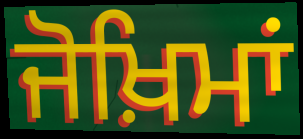
ਜੋਖ਼ਿਮਾਂ